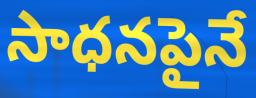
సాధనపైనే